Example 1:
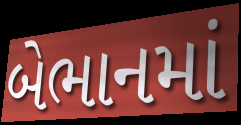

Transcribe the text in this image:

બેભાનમાં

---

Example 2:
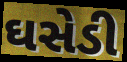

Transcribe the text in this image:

ઘસેડી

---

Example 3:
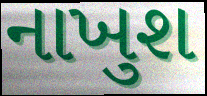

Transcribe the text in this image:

નાખુશ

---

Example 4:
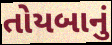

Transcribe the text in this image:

તોયબાનું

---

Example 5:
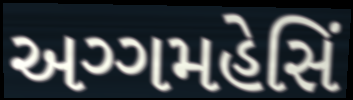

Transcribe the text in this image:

અગ્ગમહેસિં